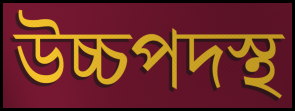
উচ্চপদস্থ